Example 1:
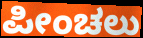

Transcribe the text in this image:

ಪೀಂಚಲು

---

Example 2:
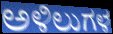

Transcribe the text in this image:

ಅಳಿಲುಗಳ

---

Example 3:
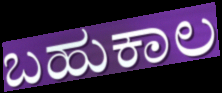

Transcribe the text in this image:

ಬಹುಕಾಲ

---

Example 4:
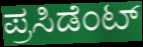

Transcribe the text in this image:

ಪ್ರಸಿಡೆಂಟ್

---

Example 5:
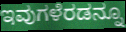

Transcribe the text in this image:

ಇವುಗಳೆರಡನ್ನೂ